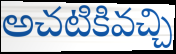
అచటికివచ్చి